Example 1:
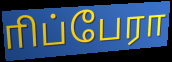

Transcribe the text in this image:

ரிப்பேரா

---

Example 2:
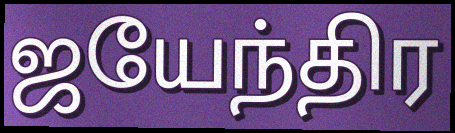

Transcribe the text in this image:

ஜயேந்திர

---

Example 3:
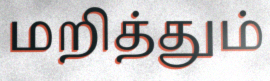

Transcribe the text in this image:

மறித்தும்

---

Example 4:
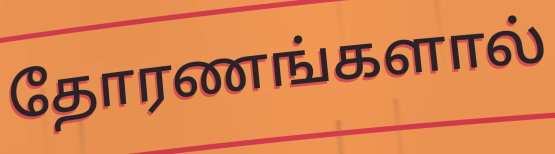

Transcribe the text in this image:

தோரணங்களால்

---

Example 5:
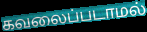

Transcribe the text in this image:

கவலைப்படாமல்